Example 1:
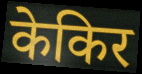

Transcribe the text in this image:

केकिर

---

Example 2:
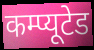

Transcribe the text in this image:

कम्प्यूटेड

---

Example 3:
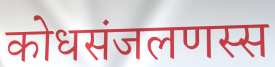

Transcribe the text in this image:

कोधसंजलणस्स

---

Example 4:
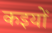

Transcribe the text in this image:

कइयों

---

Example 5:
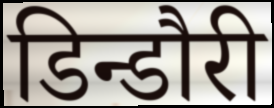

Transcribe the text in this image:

डिन्डौरी